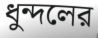
ধুন্দলের